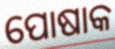
ପୋଷାକ